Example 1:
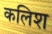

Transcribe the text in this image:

कलिश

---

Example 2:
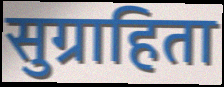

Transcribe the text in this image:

सुग्राहिता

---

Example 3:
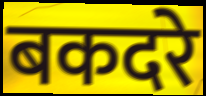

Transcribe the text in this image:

बकदरे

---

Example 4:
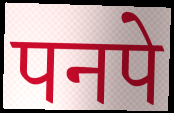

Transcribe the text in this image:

पनपे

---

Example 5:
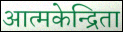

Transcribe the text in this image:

आत्मकेन्द्रिता